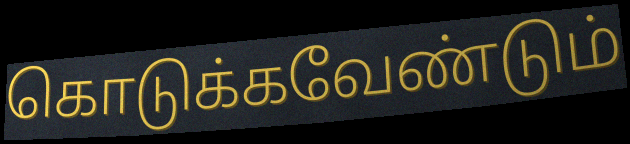
கொடுக்கவேண்டும்